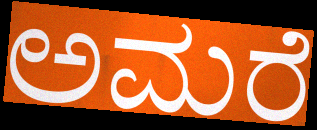
ಅಮರೆ